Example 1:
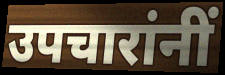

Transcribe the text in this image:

उपचारांनीं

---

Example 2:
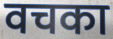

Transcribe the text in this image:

वचका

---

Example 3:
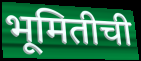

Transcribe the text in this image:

भूमितीची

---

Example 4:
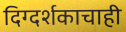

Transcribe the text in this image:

दिग्दर्शकाचाही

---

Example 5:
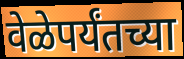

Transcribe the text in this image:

वेळेपर्यंतच्या